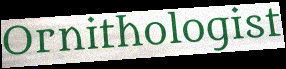
Ornithologist